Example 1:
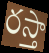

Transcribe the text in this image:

రస్తా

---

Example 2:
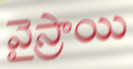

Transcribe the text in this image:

వైస్రాయి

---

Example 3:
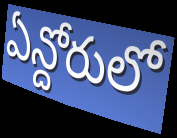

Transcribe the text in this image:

ఏన్దోరులో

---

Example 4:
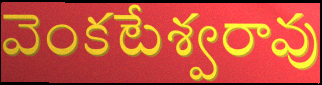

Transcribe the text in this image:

వెంకటేశ్వరావు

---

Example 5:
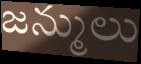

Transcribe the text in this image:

జన్ములు